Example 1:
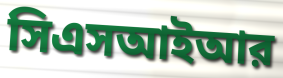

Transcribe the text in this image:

সিএসআইআর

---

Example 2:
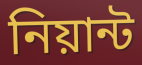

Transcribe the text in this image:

নিয়ান্ট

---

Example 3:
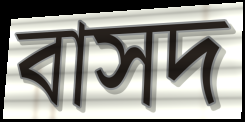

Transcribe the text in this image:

বাসদ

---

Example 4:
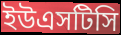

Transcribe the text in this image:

ইউএসটিসি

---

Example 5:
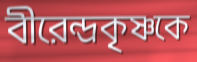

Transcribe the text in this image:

বীরেন্দ্রকৃষ্ণকে